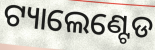
ଟ୍ୟାଲେଣ୍ଟେଡ